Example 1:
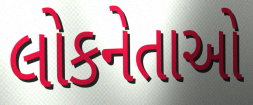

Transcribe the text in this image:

લોકનેતાઓ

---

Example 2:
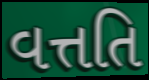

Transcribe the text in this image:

વત્તતિ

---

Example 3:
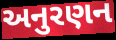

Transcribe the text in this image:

અનુરણન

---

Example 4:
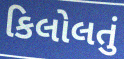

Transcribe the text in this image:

કિલોલતું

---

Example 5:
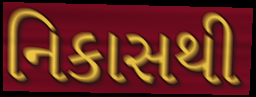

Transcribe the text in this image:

નિકાસથી